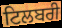
ਟਿਲਬਰੀ